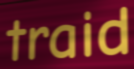
traid